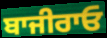
ਬਾਜੀਰਾਓ